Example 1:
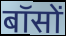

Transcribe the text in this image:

बॉसों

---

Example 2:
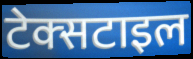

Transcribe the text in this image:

टेक्‍सटाइल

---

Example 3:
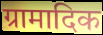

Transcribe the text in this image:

ग्रामादिक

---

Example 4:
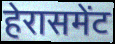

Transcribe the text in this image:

हेरासमेंट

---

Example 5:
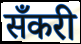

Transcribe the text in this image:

सँकरी